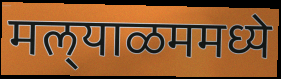
मल्याळममध्ये